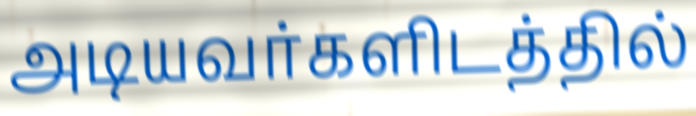
அடியவர்களிடத்தில்